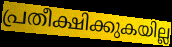
പ്രതീക്ഷിക്കുകയില്ല